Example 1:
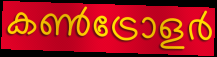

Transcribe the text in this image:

കൺട്രോളർ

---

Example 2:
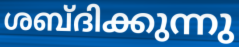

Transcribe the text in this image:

ശബ്ദിക്കുന്നു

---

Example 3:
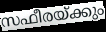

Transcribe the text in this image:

സഫീരയ്ക്കും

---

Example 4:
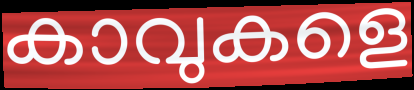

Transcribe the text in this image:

കാവുകളെ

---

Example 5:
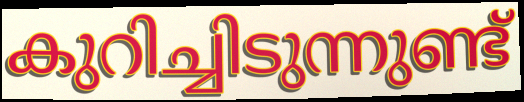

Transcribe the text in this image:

കുറിച്ചിടുന്നുണ്ട്